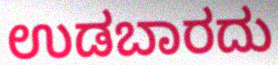
ಉಡಬಾರದು